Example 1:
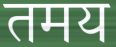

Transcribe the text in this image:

तमय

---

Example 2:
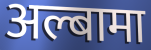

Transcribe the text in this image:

अल्बामा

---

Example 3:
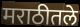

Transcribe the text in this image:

मराठीतले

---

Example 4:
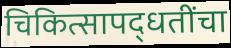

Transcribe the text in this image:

चिकित्सापद्धतींचा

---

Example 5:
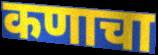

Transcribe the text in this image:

कणाचा